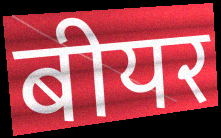
बीयर